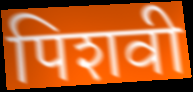
पिशवी